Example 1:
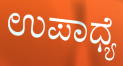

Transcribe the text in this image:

ಉಪಾಧ್ಯೆ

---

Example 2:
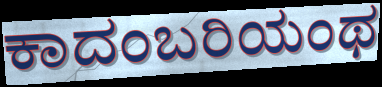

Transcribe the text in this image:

ಕಾದಂಬರಿಯಂಥ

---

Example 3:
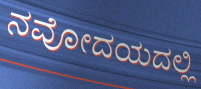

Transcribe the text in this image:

ನವೋದಯದಲ್ಲಿ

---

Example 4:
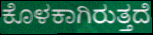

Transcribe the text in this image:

ಕೊಳಕಾಗಿರುತ್ತದೆ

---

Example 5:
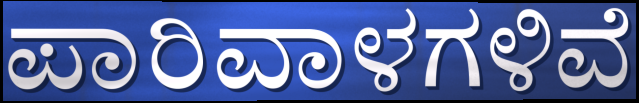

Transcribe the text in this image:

ಪಾರಿವಾಳಗಳಿವೆ